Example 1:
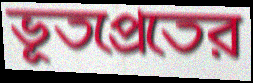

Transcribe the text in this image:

ভূতপ্রেতের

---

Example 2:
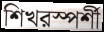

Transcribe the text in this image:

শিখরস্পর্শী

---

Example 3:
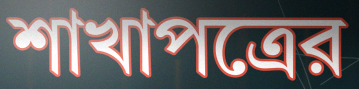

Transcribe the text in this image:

শাখাপত্রের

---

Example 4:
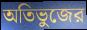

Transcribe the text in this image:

অতিভুজের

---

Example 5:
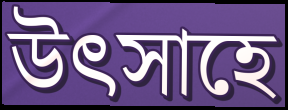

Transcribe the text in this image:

উত্‍সাহে